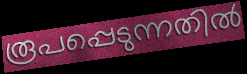
രൂപപ്പെടുന്നതിൽ